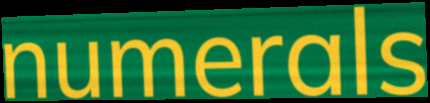
numerals